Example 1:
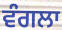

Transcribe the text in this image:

ਵੰਗਲਾ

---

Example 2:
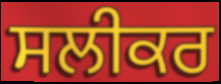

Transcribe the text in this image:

ਸਲੀਕਰ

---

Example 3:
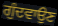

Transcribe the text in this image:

ਗੁੰਦਵਾਉਣ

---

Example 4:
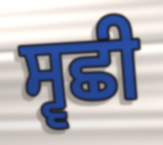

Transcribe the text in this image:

ਸ੍ਵਛੀ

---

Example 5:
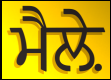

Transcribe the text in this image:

ਮੈਲ਼ੇ